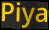
Piya